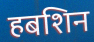
हबशिन